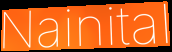
Nainital